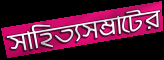
সাহিত্যসম্রাটের